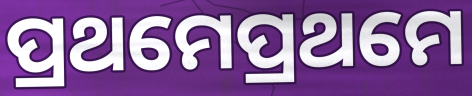
ପ୍ରଥମେପ୍ରଥମେ